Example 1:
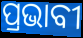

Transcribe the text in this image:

ପ୍ରଭାବୀ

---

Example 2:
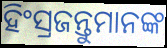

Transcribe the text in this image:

ହିଂସ୍ରଜନ୍ତୁମାନଙ୍କ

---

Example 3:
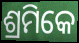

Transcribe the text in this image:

ଶ୍ରମିକେ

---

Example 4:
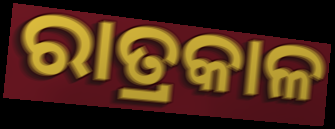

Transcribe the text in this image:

ରାତ୍ରକାଳ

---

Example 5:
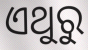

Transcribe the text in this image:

ଏଥୁରୁ